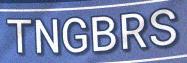
TNGBRS